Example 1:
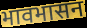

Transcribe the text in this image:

भावभासन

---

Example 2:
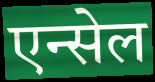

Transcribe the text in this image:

एन्सेल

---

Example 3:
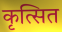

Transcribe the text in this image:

कृत्सित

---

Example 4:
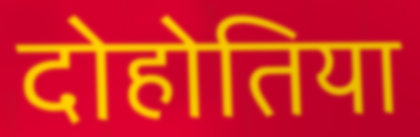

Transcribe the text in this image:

दोहोतिया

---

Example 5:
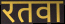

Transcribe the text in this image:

रतवा